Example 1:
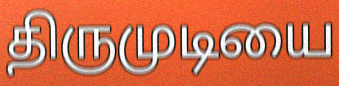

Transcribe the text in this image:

திருமுடியை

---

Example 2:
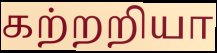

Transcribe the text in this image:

கற்றறியா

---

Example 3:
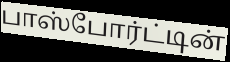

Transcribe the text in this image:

பாஸ்போர்ட்டின்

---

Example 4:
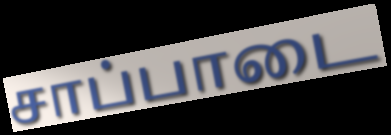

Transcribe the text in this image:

சாப்பாடை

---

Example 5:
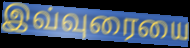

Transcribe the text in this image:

இவ்வுரையை